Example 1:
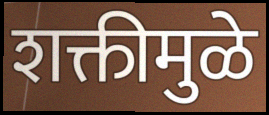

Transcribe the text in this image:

शक्तीमुळे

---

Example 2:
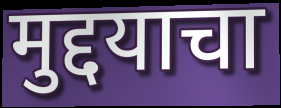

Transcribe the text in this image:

मुद्दयाचा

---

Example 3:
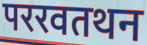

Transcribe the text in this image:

पररवतथन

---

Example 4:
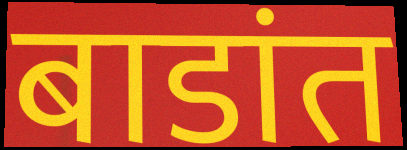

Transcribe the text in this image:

बाडांत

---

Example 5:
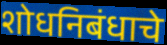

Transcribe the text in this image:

शोधनिबंधाचे